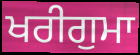
ਖਰੀਗੁਮਾ